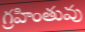
గ్రహింతువు